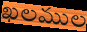
ఖలముల